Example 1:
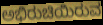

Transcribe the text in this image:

ಅಭಿರುಚಿಯಿರುವ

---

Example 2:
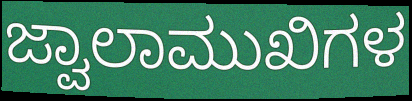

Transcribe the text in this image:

ಜ್ವಾಲಾಮುಖಿಗಳ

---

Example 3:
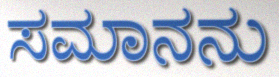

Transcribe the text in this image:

ಸಮಾನನು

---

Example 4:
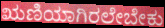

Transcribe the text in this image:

ಋಣಿಯಾಗಿರಲೇಬೇಕು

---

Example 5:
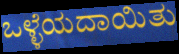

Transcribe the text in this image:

ಒಳ್ಳೆಯದಾಯಿತು